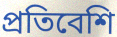
প্রতিবেশি